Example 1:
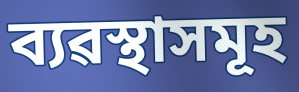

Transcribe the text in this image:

ব্যৱস্থাসমূহ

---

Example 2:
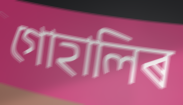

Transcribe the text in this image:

গোহালিৰ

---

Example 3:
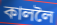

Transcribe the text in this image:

কাললৈ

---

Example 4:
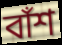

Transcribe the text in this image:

বাঁশ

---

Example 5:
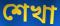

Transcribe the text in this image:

শেখা